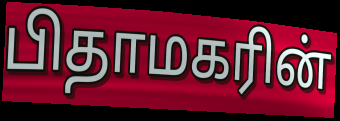
பிதாமகரின்